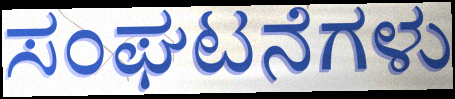
ಸಂಘಟನೆಗಳು